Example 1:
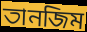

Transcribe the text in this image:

তানজিম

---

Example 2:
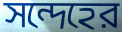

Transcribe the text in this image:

সন্দেহের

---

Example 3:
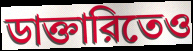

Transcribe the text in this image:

ডাক্তারিতেও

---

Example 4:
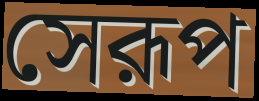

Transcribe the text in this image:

সেরূপ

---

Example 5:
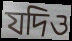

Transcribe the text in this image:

যদিও